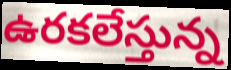
ఉరకలేస్తున్న